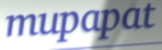
mupapat